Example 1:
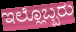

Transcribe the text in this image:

ಇಲ್ಲೊಬ್ಬರು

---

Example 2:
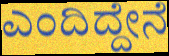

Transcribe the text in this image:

ಎಂದಿದ್ದೇನೆ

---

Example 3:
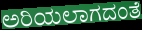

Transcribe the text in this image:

ಅರಿಯಲಾಗದಂತೆ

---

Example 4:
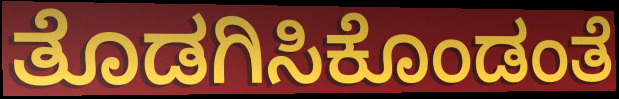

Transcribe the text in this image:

ತೊಡಗಿಸಿಕೊಂಡಂತೆ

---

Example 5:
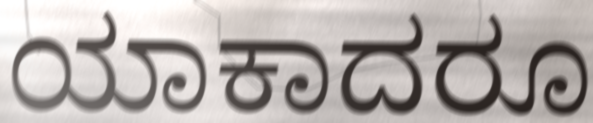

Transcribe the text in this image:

ಯಾಕಾದರೂ